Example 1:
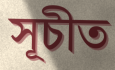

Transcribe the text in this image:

সূচীত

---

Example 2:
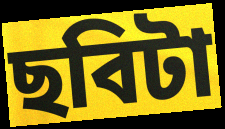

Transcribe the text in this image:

ছবিটা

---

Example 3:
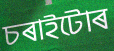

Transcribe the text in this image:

চৰাইটোৰ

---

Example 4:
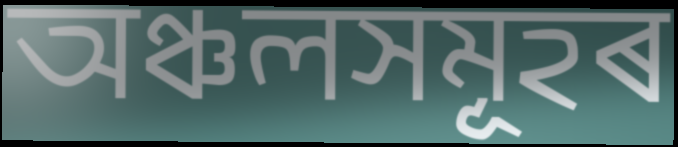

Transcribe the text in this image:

অঞ্চলসমূহৰ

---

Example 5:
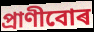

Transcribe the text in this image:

প্ৰাণীবোৰ